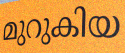
മുറുകിയ